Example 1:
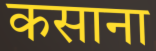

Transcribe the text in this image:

कसाना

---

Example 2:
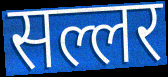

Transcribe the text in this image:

सल्लर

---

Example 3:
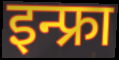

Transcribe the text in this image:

इन्फ्रा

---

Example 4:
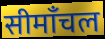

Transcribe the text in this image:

सीमाँचल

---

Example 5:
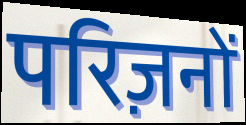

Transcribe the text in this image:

परिज़नों